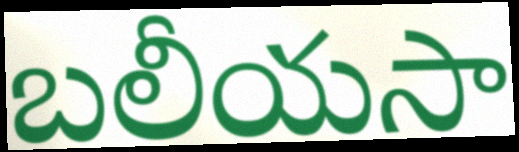
బలీయసా